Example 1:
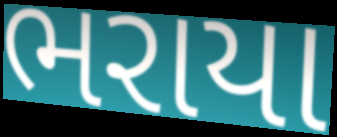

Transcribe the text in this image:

ભરાયા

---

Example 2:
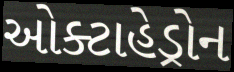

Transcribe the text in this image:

ઓક્ટાહેડ્રોન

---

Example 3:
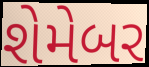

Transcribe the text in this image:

શેમેબર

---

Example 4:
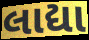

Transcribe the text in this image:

લાદ્યા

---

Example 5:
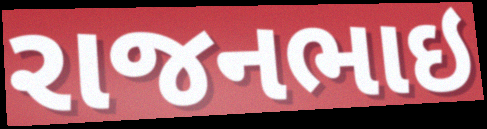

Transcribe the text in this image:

રાજનભાઇ